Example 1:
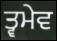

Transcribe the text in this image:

ਤ੍ਵਮੇਵ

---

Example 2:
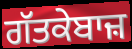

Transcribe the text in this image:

ਗੱਤਕੇਬਾਜ਼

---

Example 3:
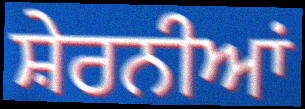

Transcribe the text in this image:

ਸ਼ੇਰਨੀਆਂ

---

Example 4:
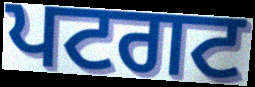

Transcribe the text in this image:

ਪਟਗਟ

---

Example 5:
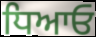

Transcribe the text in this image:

ਧਿਆਓ